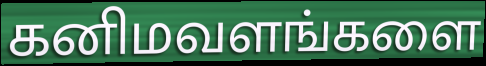
கனிமவளங்களை